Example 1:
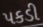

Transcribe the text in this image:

પકડી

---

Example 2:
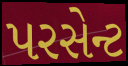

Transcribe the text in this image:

પરસેન્ટ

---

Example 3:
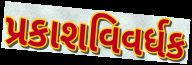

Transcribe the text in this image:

પ્રકાશવિવર્ધક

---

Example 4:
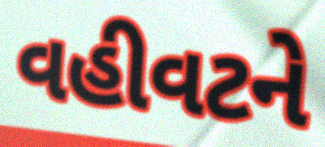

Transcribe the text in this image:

વહીવટને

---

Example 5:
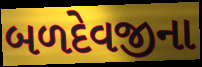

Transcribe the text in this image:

બળદેવજીના